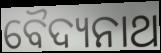
ବୈଦ୍ୟନାଥ